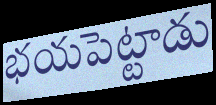
భయపెట్టాడు